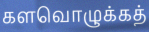
களவொழுக்கத்